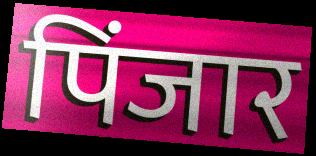
पिंजार